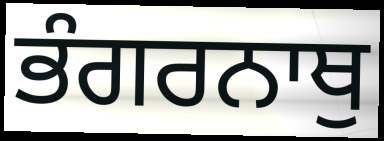
ਭੰਗਰਨਾਥੁ